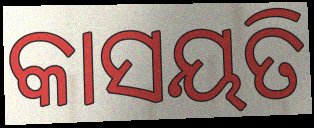
କାସୟତି